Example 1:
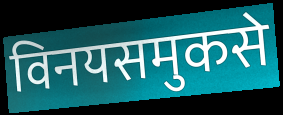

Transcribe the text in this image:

विनयसमुकसे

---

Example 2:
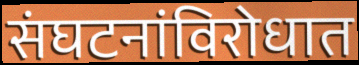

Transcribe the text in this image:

संघटनांविरोधात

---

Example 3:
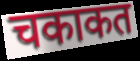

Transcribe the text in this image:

चकाकत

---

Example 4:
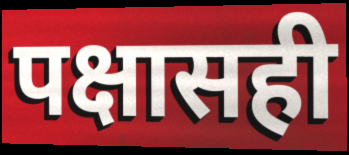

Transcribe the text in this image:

पक्षासही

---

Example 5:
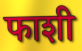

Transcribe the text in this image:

फाशी